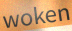
woken